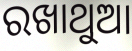
ରଖାଥୁଆ